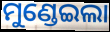
ମୁଣ୍ଡେଇଲା